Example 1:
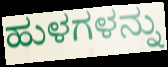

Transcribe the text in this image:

ಹುಳಗಳನ್ನು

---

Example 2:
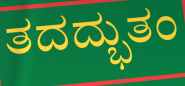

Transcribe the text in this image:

ತದದ್ಭುತಂ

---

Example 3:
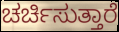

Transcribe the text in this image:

ಚರ್ಚಿಸುತ್ತಾರೆ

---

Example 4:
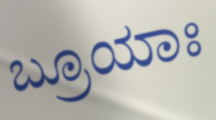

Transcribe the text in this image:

ಬ್ರೂಯಾಃ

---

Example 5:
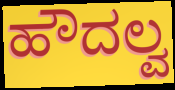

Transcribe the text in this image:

ಹೌದಲ್ವ